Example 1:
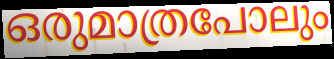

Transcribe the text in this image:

ഒരുമാത്രപോലും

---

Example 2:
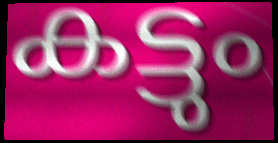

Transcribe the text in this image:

കട്ടും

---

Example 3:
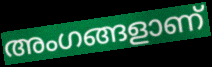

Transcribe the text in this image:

അംഗങ്ങളാണ്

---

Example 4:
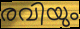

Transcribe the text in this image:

രവിയും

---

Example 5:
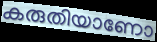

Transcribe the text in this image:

കരുതിയാണോ